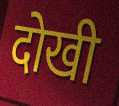
दोखी